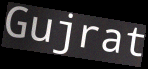
Gujrat